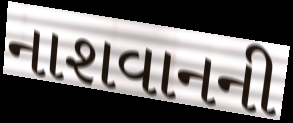
નાશવાનની